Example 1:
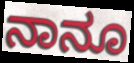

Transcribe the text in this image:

ನಾನೂ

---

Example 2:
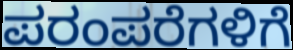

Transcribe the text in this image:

ಪರಂಪರೆಗಳಿಗೆ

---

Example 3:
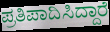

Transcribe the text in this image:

ಪ್ರತಿಪಾದಿಸಿದ್ದಾರೆ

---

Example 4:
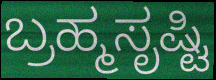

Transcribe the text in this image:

ಬ್ರಹ್ಮಸೃಷ್ಟಿ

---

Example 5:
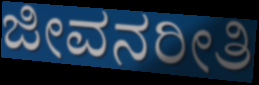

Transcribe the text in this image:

ಜೀವನರೀತಿ